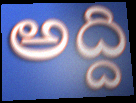
అద్ది